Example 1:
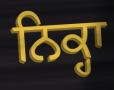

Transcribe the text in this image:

ਨਿਕ੍ਹਾ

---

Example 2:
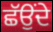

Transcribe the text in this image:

ਛੱਉਂਦੇ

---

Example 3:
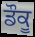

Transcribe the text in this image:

ਡੌਕੂ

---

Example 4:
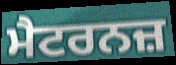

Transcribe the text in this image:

ਮੈਟਰਨਜ਼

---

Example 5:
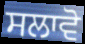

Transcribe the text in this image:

ਸਲਾਵੋ